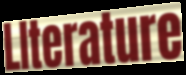
LIterature